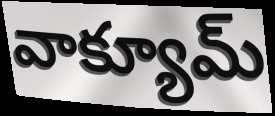
వాక్యూమ్